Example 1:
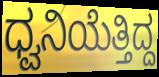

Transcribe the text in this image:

ಧ್ವನಿಯೆತ್ತಿದ್ದ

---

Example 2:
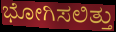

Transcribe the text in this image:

ಭೋಗಿಸಲಿತ್ತು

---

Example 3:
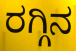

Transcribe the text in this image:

ರಗ್ಗಿನ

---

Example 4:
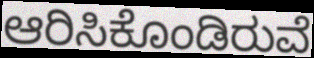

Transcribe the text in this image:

ಆರಿಸಿಕೊಂಡಿರುವೆ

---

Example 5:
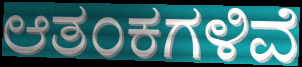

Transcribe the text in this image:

ಆತಂಕಗಳಿವೆ